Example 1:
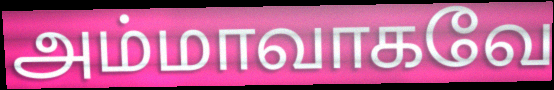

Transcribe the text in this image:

அம்மாவாகவே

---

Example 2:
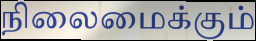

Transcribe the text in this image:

நிலைமைக்கும்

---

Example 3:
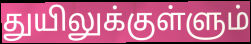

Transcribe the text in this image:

துயிலுக்குள்ளும்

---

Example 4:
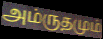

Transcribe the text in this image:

அம்ருதமும்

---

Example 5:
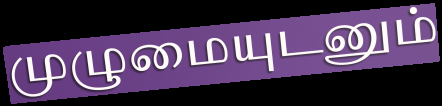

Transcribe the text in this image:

முழுமையுடனும்